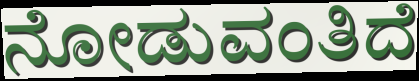
ನೋಡುವಂತಿದೆ